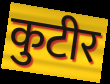
कुटीर